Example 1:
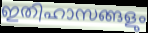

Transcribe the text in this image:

ഇതിഹാസങ്ങളും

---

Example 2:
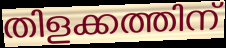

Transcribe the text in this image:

തിളക്കത്തിന്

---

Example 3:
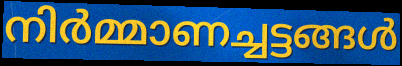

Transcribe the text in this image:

നിർമ്മാണച്ചട്ടങ്ങൾ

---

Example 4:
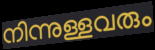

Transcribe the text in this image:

നിന്നുള്ളവരും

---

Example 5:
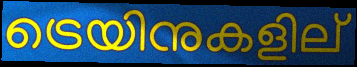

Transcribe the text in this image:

ട്രെയിനുകളില്